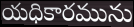
యధికారమును